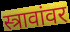
स्त्रावांवर